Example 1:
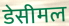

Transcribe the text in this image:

डेसीमल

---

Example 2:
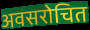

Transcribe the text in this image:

अवसरोचित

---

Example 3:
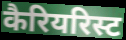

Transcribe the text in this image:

कैरियरिस्ट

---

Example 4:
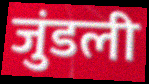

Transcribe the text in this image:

जुंडली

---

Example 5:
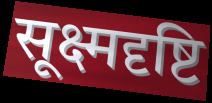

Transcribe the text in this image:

सूक्ष्मदृष्टि